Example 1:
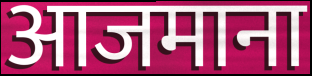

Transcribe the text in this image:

आजमाना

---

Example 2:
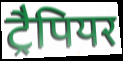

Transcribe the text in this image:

ट्रैपियर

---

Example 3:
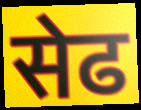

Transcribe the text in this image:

सेढ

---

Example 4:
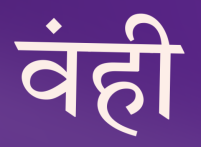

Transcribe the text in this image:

वंही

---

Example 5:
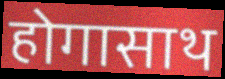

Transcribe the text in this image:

होगासाथ